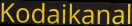
Kodaikanal